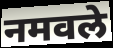
नमवले